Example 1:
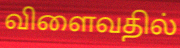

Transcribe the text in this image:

விளைவதில்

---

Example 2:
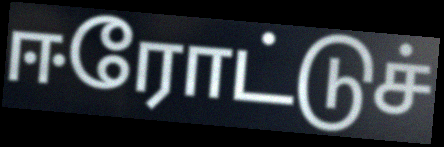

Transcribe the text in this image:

ஈரோட்டுச்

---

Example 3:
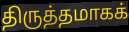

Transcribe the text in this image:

திருத்தமாகக்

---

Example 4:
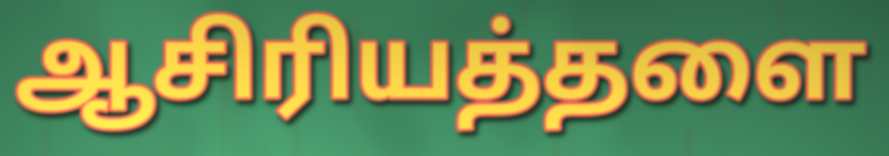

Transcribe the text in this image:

ஆசிரியத்தளை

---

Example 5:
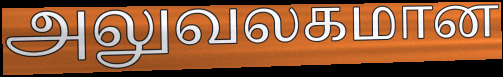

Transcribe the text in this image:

அலுவலகமான